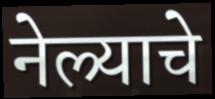
नेल्याचे